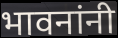
भावनांनी